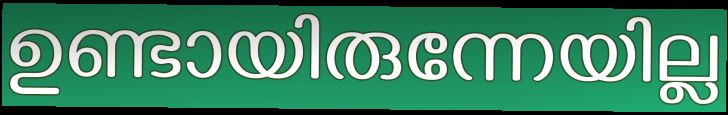
ഉണ്ടായിരുന്നേയില്ല